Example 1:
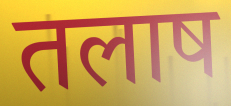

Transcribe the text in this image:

तलाष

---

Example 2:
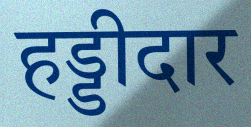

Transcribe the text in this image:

हड्डीदार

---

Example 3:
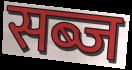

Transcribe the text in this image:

सब्ज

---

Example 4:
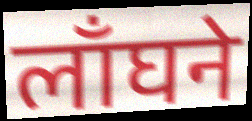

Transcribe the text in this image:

लाँघने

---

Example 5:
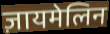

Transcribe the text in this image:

ज़ायमेलिन